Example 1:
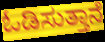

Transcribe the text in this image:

ಓಡಿಸುತ್ತಾನೆ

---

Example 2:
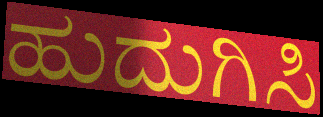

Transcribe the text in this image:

ಹುದುಗಿಸಿ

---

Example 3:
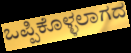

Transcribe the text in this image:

ಒಪ್ಪಿಕೊಳ್ಳಲಾಗದ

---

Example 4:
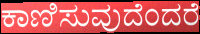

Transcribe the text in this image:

ಕಾಣಿಸುವುದೆಂದರೆ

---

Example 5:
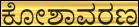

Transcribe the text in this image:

ಕೋಶಾವರಣ